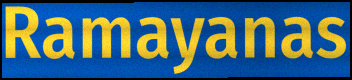
Ramayanas